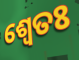
ଶ୍ଵେତଃ